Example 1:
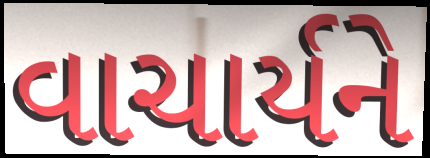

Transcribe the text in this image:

વાચાર્યને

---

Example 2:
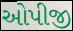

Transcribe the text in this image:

ઓપીજી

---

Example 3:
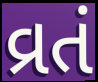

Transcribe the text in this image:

વ્રતં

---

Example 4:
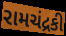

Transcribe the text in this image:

રામચંદ્રકી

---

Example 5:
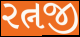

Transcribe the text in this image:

રત્નજી